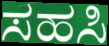
ಸಹಸಿ